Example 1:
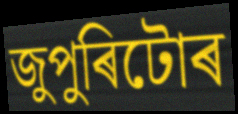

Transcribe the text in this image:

জুপুৰিটোৰ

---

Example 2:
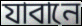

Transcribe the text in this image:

যাবানে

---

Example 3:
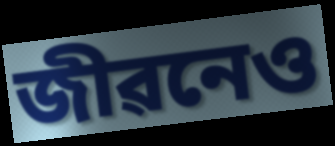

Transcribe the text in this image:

জীৱনেও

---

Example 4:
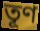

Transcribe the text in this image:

তূণ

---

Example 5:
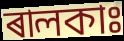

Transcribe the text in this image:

ৰালকাঃ